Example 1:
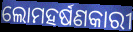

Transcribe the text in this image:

ଲୋମହର୍ଷଣକାରୀ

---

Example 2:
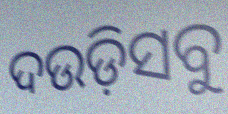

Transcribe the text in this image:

ଦଉଡ଼ିସବୁ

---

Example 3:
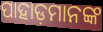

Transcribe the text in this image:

ପାହାଡ଼ମାନଙ୍କ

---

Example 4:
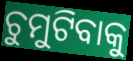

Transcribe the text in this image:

ଚୁମୁଟିବାକୁ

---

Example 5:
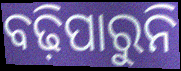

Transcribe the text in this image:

ବଢ଼ିପାରୁନି